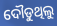
ଦୌଡୁଥିଲୁ